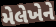
મેલેખેને